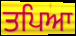
ਤਪਿਆ